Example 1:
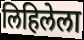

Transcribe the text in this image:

लिहिलेला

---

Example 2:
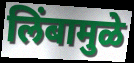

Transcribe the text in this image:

लिंबामुळे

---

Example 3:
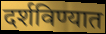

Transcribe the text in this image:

दर्शविण्यात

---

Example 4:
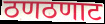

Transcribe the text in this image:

ठणठणाट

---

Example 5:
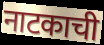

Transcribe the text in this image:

नाटकाची